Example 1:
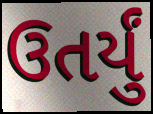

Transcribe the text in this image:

ઉતર્યું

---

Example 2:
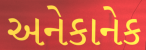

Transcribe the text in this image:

અનેકાનેક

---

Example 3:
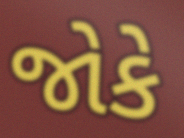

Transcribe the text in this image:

જોકે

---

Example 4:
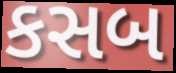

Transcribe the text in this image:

કસબ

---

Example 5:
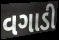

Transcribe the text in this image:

વગાડી